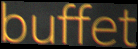
buffet